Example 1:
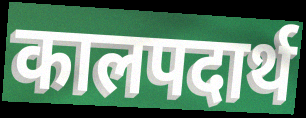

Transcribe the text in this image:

कालपदार्थ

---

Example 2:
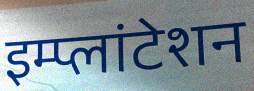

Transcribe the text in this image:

इम्प्लांटेशन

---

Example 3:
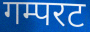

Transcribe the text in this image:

गम्परट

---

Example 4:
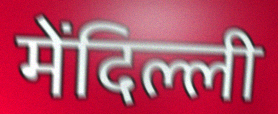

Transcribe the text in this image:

मेंदिल्ली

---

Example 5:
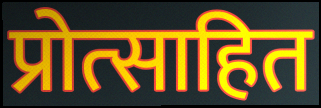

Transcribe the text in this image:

प्रोत्‍साहित